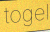
togel